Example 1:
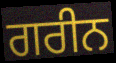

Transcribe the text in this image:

ਗਰੀਨ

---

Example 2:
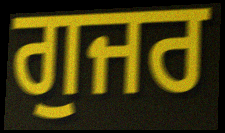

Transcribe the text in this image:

ਗੁਜਰ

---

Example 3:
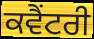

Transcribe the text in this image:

ਕਵੈਂਟਰੀ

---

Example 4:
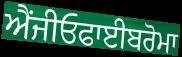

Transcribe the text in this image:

ਐਂਜੀਓਫਾਈਬਰੋਮਾ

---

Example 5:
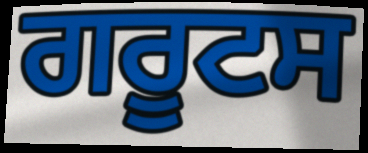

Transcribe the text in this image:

ਗਰੂਟਸ